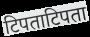
टिपताटिपता